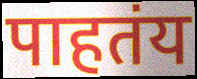
पाहतंय